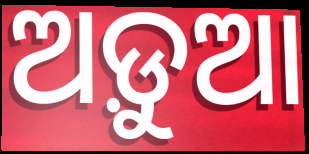
ଅଡ଼ୁଆ